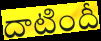
దాటిందీ